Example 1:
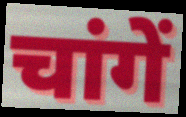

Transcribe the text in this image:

चांगें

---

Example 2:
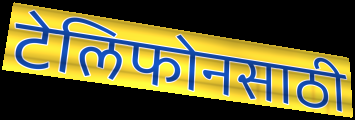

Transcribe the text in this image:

टेलिफोनसाठी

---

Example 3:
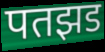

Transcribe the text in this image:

पतझड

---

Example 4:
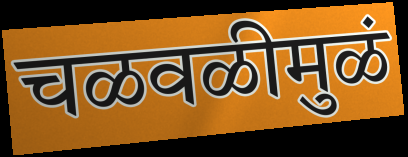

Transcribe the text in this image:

चळवळीमुळं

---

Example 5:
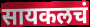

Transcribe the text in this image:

सायकलचं